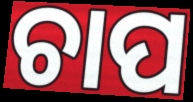
ଚାପ